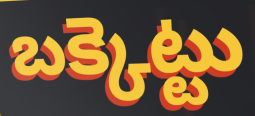
బక్కెట్టు